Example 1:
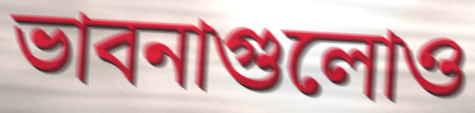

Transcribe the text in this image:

ভাবনাগুলোও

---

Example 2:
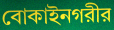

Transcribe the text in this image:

বোকাইনগরীর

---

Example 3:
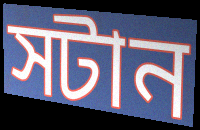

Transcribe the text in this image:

সটান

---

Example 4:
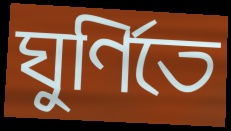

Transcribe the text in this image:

ঘুর্ণিতে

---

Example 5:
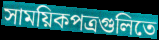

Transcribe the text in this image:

সাময়িকপত্রগুলিতে